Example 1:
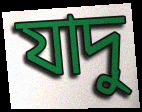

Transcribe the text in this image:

যাদু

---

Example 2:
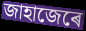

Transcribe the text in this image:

জাহাজেৰে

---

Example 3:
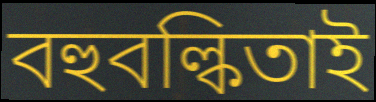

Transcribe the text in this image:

বহুবল্কিতাই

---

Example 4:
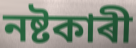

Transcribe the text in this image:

নষ্টকাৰী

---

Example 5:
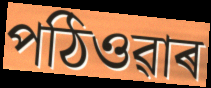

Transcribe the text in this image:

পঠিওৱাৰ